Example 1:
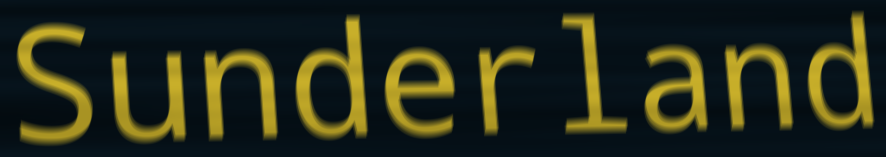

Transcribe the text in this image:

Sunderland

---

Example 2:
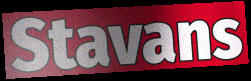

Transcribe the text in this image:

Stavans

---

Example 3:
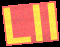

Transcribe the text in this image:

LII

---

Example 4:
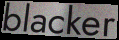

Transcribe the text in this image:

blacker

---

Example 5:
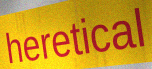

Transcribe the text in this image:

heretical